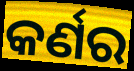
କର୍ଣର